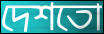
দেশতো